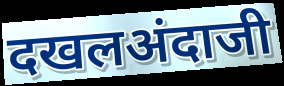
दखलअंदाजी